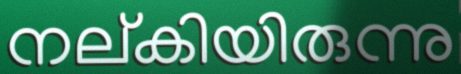
നല്കിയിരുന്നു